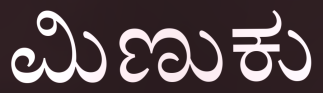
ಮಿಣುಕು